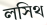
লসিথ